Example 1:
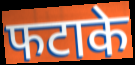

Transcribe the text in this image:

फटाके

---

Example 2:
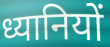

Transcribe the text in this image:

ध्यानियों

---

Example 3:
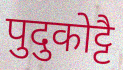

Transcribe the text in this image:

पुदुकोट्टै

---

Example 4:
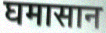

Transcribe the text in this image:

घमासान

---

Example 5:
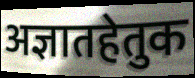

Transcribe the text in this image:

अज्ञातहेतुक